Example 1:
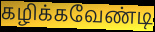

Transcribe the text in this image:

கழிக்கவேண்டி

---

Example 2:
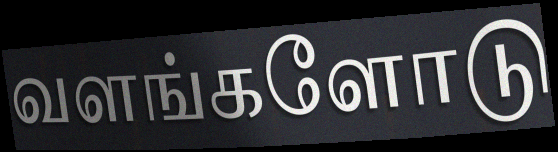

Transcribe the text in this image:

வளங்களோடு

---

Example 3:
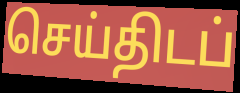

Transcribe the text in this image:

செய்திடப்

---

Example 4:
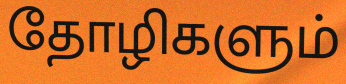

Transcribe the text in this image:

தோழிகளும்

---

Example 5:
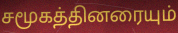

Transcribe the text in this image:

சமூகத்தினரையும்